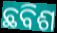
ଛବିଶ